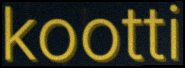
kootti